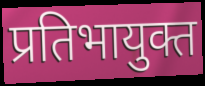
प्रतिभायुक्त